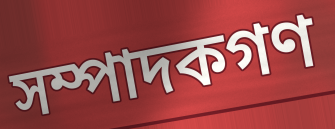
সম্পাদকগণ